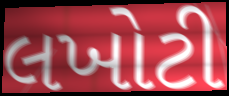
લખોટી